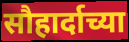
सौहार्दाच्या